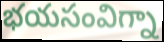
భయసంవిగ్నా